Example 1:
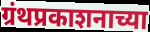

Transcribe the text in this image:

ग्रंथप्रकाशनाच्या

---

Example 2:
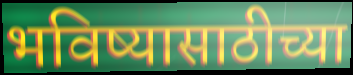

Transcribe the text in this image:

भविष्यासाठीच्या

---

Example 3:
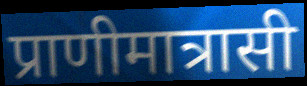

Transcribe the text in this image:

प्राणीमात्रासी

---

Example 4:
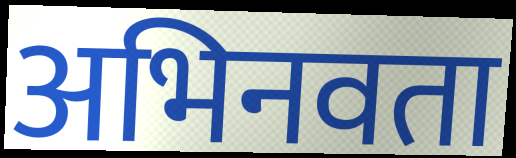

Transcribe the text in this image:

अभिनवता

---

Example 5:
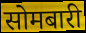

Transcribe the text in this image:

सोमबारी